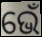
ଭେଁ